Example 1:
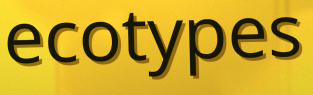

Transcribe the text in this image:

ecotypes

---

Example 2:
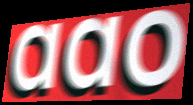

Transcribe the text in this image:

aao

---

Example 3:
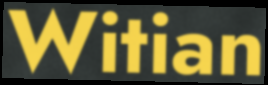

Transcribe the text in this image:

Witian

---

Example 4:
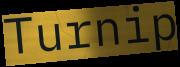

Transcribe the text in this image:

Turnip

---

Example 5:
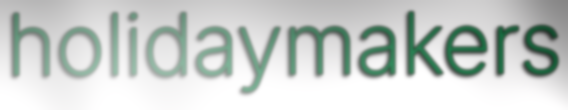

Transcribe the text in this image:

holidaymakers